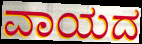
ವಾಯದ